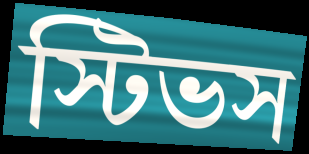
স্টিভস